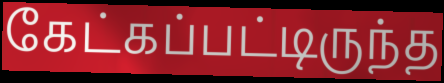
கேட்கப்பட்டிருந்த